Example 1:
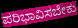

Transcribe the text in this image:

ಪರಿಭಾವಿಸಬೇಕು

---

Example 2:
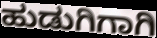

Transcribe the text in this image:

ಹುಡುಗಿಗಾಗಿ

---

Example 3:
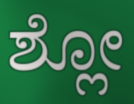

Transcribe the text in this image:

ಶ್ಲೋ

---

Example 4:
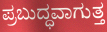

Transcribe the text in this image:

ಪ್ರಬುದ್ಧವಾಗುತ್ತ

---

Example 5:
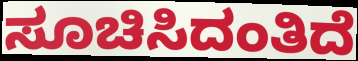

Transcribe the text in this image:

ಸೂಚಿಸಿದಂತಿದೆ